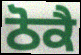
ਠੋਕੈ